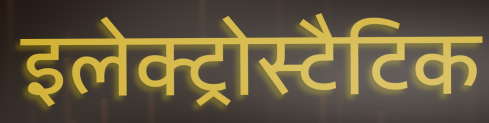
इलेक्ट्रोस्टैटिक